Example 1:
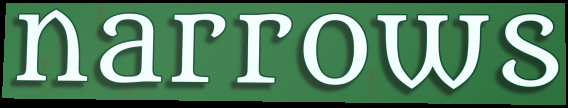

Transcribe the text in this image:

narrows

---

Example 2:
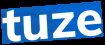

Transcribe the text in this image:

tuze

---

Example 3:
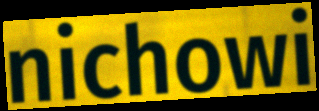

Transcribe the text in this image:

nichowi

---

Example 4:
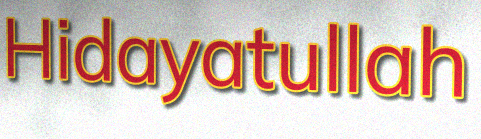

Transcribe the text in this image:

Hidayatullah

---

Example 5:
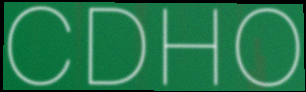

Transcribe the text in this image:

CDHO